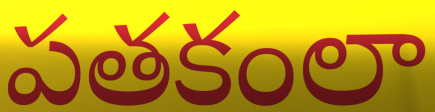
పతకంలా